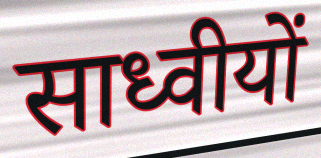
साध्वीयों